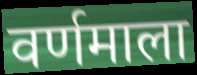
वर्णमाला